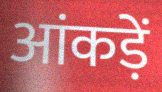
आंकड़ें